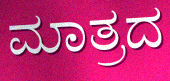
ಮಾತ್ರದ